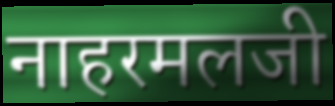
नाहरमलजी